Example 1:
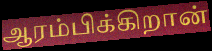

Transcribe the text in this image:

ஆரம்பிக்கிறான்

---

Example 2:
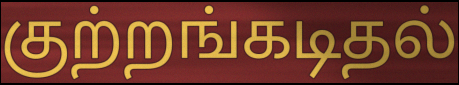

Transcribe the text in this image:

குற்றங்கடிதல்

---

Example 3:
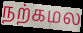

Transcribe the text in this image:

நற்கமல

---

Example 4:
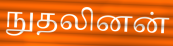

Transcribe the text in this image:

நுதலினன்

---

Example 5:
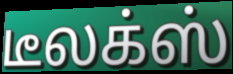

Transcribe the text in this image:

டீலக்ஸ்